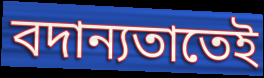
বদান্যতাতেই